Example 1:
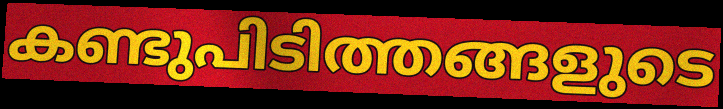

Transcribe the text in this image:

കണ്ടുപിടിത്തങ്ങളുടെ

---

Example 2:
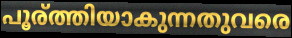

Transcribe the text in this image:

പൂര്ത്തിയാകുന്നതുവരെ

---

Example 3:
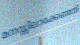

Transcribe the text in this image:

മനസ്സിലാക്കേണ്ടത്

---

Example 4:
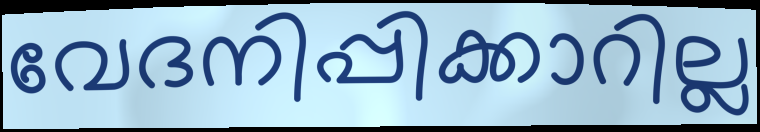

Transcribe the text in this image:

വേദനിപ്പിക്കാറില്ല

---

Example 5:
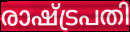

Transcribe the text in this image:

രാഷ്ട്രപതി